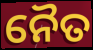
ନୈତ